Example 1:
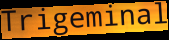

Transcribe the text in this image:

Trigeminal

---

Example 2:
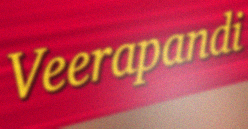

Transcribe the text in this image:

Veerapandi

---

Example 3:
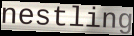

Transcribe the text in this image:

nestling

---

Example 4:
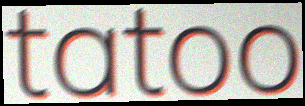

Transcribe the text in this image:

tatoo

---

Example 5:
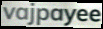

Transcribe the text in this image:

vajpayee